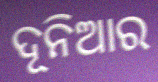
ଦୂନିଆର